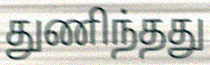
துணிந்தது